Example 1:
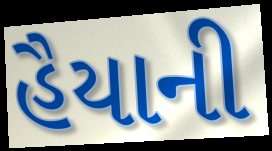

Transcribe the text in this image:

હૈયાની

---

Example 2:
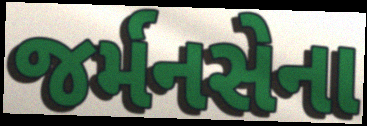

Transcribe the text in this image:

જર્મનસેના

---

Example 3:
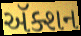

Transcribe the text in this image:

ઍક્શન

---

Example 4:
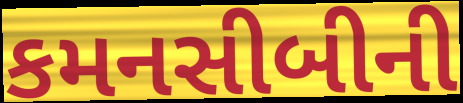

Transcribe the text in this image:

કમનસીબીની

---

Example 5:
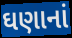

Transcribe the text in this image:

ઘણાનાં